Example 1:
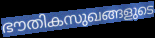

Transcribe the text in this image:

ഭൗതികസുഖങ്ങളുടെ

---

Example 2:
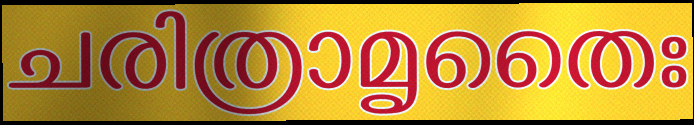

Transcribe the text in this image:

ചരിത്രാമൃതൈഃ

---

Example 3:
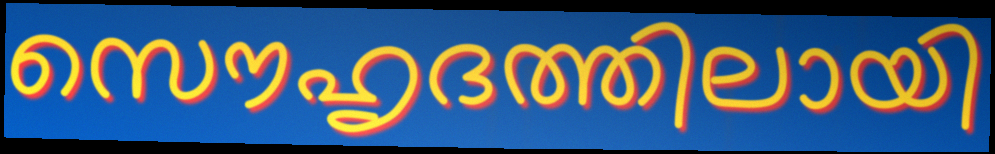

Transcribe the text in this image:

സൌഹൃദത്തിലായി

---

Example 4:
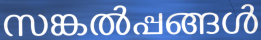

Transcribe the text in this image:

സങ്കൽപ്പങ്ങൾ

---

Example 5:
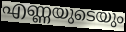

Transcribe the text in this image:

എണ്ണയുടെയും